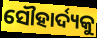
ସୌହାର୍ଦ୍ୟକୁ